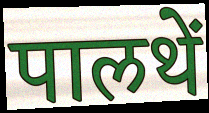
पालथें